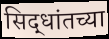
सिद्धांतच्या